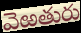
వెఱతురు